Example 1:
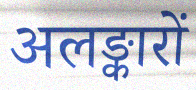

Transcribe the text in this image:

अलङ्कारों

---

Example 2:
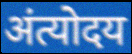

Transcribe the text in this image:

अंत्योदय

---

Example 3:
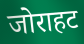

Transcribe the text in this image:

जोराहट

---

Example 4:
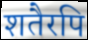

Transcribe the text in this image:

शतैरपि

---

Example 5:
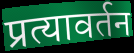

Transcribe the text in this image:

प्रत्‍यावर्तन